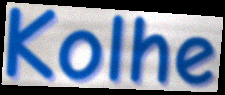
Kolhe